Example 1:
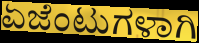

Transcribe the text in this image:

ಏಜೆಂಟುಗಳಾಗಿ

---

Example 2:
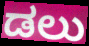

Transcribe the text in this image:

ಡಲು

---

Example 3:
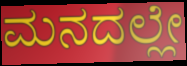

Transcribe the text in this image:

ಮನದಲ್ಲೇ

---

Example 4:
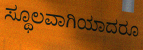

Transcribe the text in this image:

ಸ್ಥೂಲವಾಗಿಯಾದರೂ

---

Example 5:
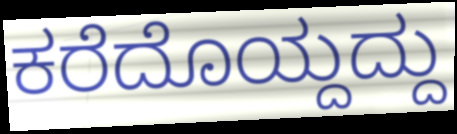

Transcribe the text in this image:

ಕರೆದೊಯ್ದದ್ದು